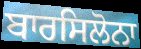
ਬਾਰਸਿਲੋਨਾ